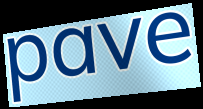
pave